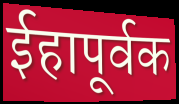
ईहापूर्वक